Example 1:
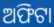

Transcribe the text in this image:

ଅଫିଟା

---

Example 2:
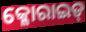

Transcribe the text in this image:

କ୍ଳୋରାଇଡ୍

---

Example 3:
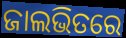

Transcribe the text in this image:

ଜାଲଭିତରେ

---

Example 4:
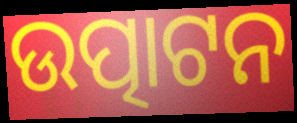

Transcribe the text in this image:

ଉତ୍ପାଟନ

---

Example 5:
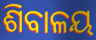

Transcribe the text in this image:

ଶିବାଳୟ